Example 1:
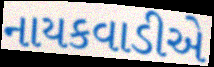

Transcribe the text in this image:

નાયકવાડીએ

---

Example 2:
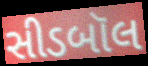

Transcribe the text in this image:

સીડબૉલ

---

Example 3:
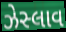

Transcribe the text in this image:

ઝેસ્લાવ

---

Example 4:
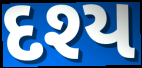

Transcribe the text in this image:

દશ્ય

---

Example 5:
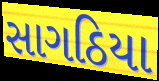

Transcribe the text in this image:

સાગઠિયા